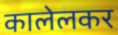
कालेलकर